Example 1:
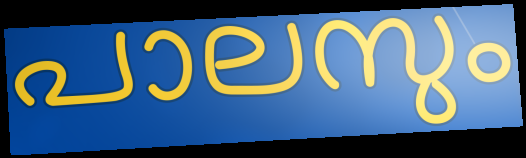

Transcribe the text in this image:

പാലസും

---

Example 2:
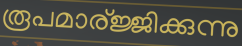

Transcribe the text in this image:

രൂപമാര്ജ്ജിക്കുന്നു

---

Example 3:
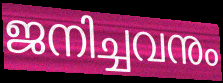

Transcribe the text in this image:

ജനിച്ചവനും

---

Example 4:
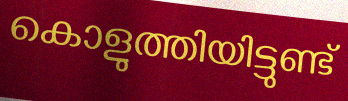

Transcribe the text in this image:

കൊളുത്തിയിട്ടുണ്ട്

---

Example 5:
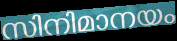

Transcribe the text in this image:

സിനിമാനയം